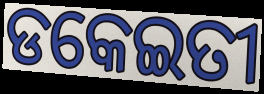
ଡକେଇତୀ